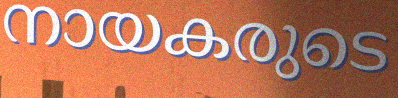
നായകരുടെ